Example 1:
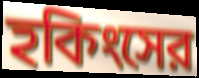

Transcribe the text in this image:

হকিংসের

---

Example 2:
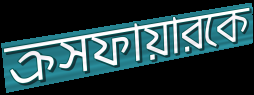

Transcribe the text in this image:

ক্রসফায়ারকে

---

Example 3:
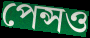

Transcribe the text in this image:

পেন্সও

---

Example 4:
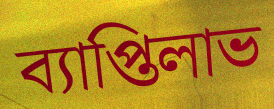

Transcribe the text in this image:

ব্যাপ্তিলাভ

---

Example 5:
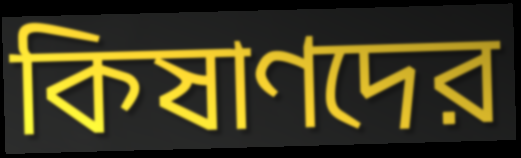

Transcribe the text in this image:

কিষাণদের